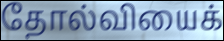
தோல்வியைக்